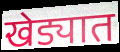
खेड्यात